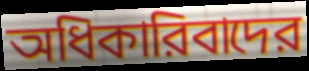
অধিকারিবাদের